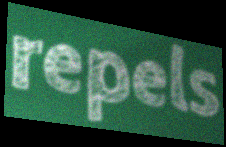
repels